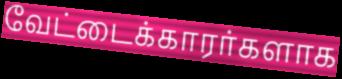
வேட்டைக்காரர்களாக